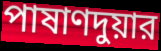
পাষাণদুয়ার